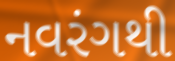
નવરંગથી